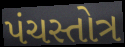
પંચસ્તોત્ર